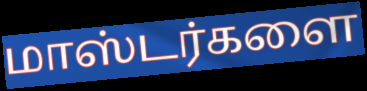
மாஸ்டர்களை